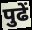
पुढें